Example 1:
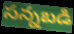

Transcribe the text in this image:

సన్నబడి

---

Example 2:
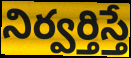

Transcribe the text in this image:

నిర్వర్తిస్తే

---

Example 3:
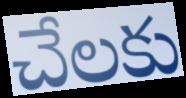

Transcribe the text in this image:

చేలకు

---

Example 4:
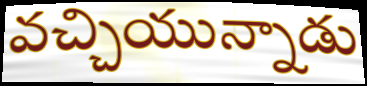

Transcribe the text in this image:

వచ్చియున్నాడు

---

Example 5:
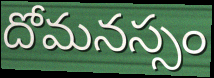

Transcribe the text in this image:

దోమనస్సం